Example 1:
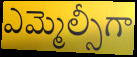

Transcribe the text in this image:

ఎమ్మెల్సీగా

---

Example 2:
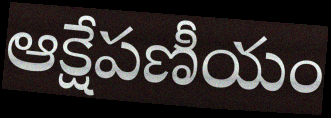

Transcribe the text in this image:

ఆక్షేపణీయం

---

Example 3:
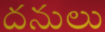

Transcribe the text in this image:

దనులు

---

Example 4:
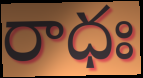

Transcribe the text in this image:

రాధః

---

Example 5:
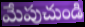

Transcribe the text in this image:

మేపుచుండి